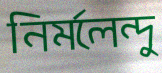
নির্মলেন্দু